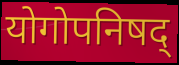
योगोपनिषद्